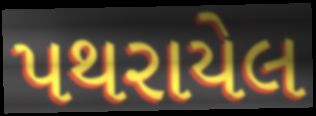
પથરાયેલ